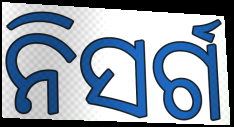
ନିସର୍ଗ